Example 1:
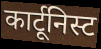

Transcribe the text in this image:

कार्टूनिस्ट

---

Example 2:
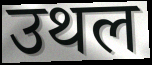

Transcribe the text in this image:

उथल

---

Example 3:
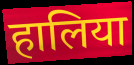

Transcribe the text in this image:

हालिया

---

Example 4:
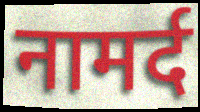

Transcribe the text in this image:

नामर्द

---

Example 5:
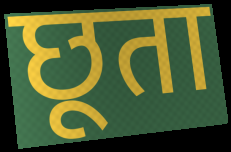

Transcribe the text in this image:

छूता